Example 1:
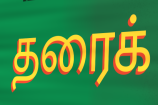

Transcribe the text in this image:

தரைக்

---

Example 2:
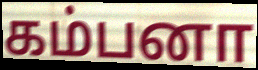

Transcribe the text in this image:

கம்பனா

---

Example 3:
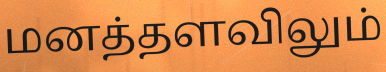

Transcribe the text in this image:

மனத்தளவிலும்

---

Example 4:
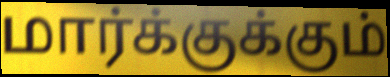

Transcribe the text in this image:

மார்க்குக்கும்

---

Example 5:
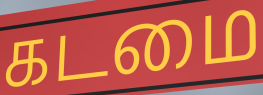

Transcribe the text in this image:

கடமை